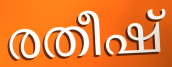
രതീഷ്